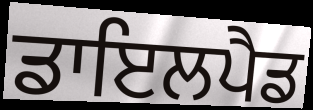
ਡਾਇਲਪੈਡ